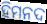
ହିମନଦ